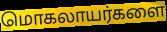
மொகலாயர்களை